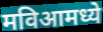
मविआमध्ये